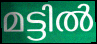
മട്ടിൽ